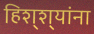
हिश्श्यांना